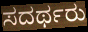
ಸದರ್ಥರು